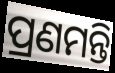
ପ୍ରଣମନ୍ତି